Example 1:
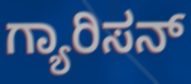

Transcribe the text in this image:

ಗ್ಯಾರಿಸನ್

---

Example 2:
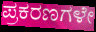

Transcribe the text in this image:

ಪ್ರಕರಣಗಳೇ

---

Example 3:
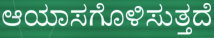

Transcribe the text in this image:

ಆಯಾಸಗೊಳಿಸುತ್ತದೆ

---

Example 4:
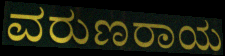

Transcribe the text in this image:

ವರುಣರಾಯ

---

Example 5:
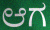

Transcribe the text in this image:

ಆಗ